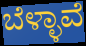
ಬೆಳ್ಳಾವೆ